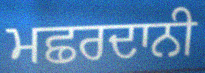
ਮਛਰਦਾਨੀ